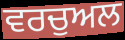
ਵਰਚੁਅਲ